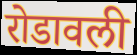
रोडावली